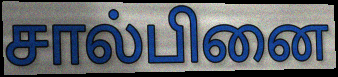
சால்பினை